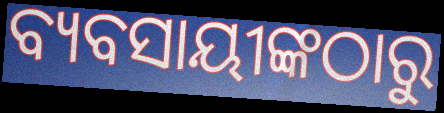
ବ୍ୟବସାୟୀଙ୍କଠାରୁ